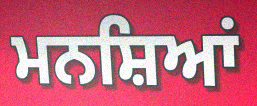
ਮਨਸ਼ਿਆਂ